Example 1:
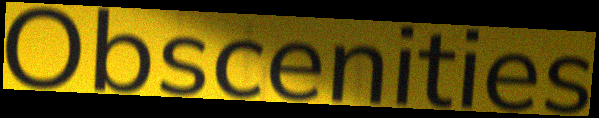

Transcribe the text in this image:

Obscenities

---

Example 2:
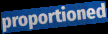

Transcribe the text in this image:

proportioned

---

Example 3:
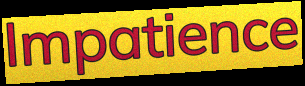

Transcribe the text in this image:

Impatience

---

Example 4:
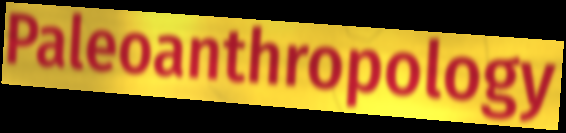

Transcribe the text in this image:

Paleoanthropology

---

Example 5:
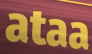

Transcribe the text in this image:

ataa